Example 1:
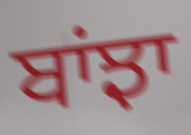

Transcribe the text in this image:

ਬਾਂਝਾ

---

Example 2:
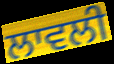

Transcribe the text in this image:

ਲਾਵਲੀ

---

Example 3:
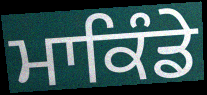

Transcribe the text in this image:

ਮਾਕਿੰਡੇ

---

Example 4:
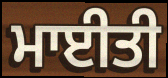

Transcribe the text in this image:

ਮਾਈਤੀ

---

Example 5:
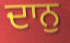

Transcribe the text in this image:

ਦਾਨੁ